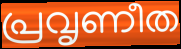
പ്രവൃണീത